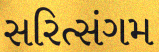
સરિત્સંગમ